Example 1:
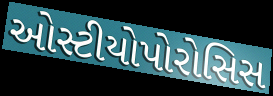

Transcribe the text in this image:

ઓસ્ટીયોપોરોસિસ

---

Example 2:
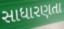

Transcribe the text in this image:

સાધારણતા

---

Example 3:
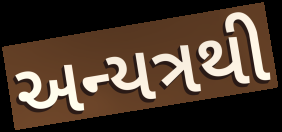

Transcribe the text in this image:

અન્યત્રથી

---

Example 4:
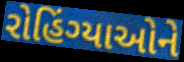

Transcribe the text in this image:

રોહિંગ્યાઓને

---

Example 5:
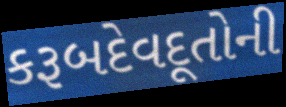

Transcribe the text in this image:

કરૂબદેવદૂતોની